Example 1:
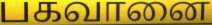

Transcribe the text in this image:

பகவானை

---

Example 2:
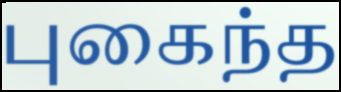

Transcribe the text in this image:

புகைந்த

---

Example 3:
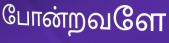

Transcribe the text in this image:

போன்றவளே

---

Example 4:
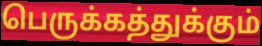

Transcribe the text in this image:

பெருக்கத்துக்கும்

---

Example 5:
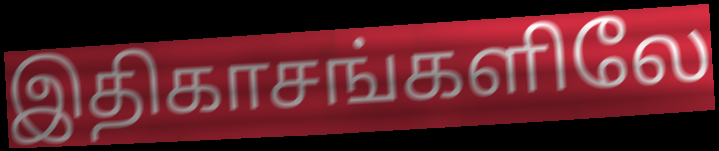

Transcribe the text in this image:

இதிகாசங்களிலே